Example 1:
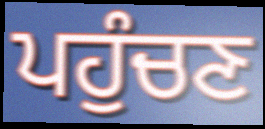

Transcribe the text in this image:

ਪਹੁੰਚਣ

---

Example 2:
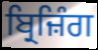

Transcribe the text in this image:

ਬ੍ਰਿਜ਼ਿੰਗ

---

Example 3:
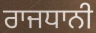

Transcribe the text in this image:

ਰਾਜਧਾਨੀ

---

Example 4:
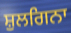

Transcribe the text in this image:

ਸ਼ੁਲਗਿਨਾ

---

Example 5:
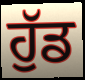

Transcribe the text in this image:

ਹੁੱਡ